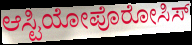
ಆಸ್ಟಿಯೋಪೊರೋಸಿಸ್